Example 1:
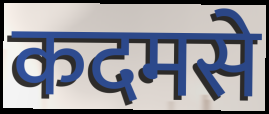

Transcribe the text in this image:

कदमसे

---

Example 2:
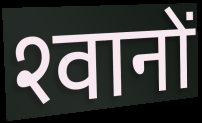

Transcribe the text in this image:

श्वानों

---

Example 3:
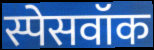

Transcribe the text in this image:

स्पेसवॉक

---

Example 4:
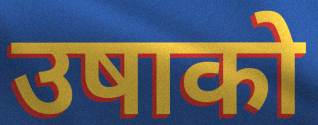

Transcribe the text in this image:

उषाको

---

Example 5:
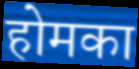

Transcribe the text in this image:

होमका